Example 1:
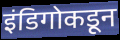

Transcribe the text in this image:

इंडिगोकडून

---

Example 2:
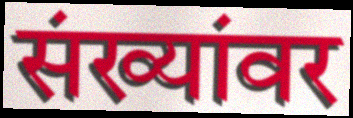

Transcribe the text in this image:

संख्यांवर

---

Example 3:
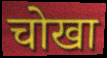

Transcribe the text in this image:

चोखा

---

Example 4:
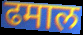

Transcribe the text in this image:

ढमाल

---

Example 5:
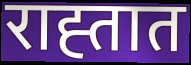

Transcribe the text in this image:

राह्तात